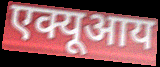
एक्यूआय